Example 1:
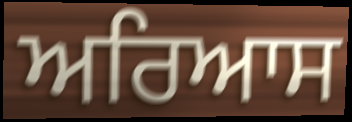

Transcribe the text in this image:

ਅਰਿਆਸ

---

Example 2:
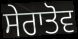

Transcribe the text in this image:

ਸੇਰਾਤੋਵ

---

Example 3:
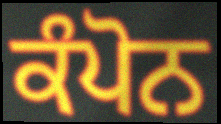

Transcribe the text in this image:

ਕੰਪੋਨ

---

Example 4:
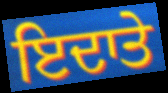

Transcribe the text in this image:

ਇਦਾਤੇ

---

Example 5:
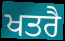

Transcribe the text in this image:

ਖਤਰੈ